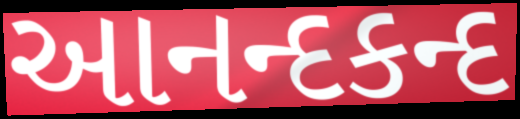
આનન્દકન્દ